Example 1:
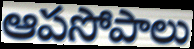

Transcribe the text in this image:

ఆపసోపాలు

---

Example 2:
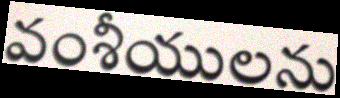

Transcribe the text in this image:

వంశీయులను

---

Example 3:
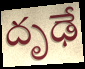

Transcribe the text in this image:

దృఢే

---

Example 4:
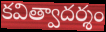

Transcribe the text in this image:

కవిత్వాదర్శం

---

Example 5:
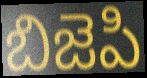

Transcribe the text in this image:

బిజెపి